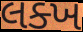
લક્ખ